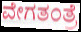
ವೇಗತಂತ್ರೆ